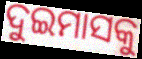
ଦୁଇମାସକୁ